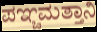
ಪಞ್ಚಮತ್ತಾನಿ